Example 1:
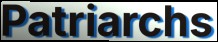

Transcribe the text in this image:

Patriarchs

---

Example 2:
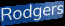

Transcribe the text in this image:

Rodgers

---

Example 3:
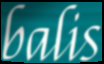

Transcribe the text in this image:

balis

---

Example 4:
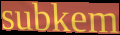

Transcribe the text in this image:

subkem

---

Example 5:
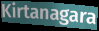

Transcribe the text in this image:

Kirtanagara